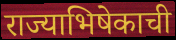
राज्याभिषेकाची